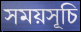
সময়সূচি